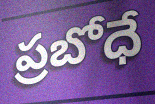
ప్రబోధే